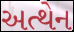
અત્થેન